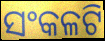
ସଂକଳଟି